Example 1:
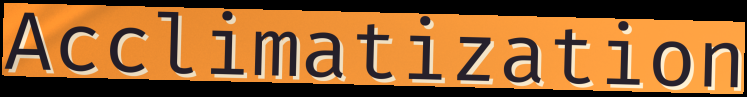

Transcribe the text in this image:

Acclimatization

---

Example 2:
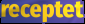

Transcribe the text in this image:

receptet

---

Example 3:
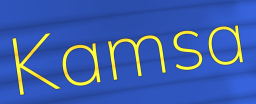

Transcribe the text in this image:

Kamsa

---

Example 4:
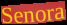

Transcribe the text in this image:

Senora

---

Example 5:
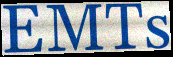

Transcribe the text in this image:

EMTs